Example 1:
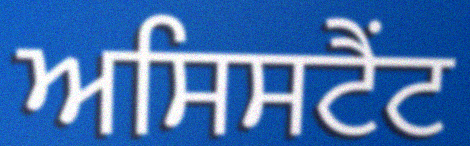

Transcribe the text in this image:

ਅਸਿਸਟੈਂਟ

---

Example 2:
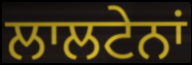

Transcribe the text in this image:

ਲਾਲਟੇਨਾਂ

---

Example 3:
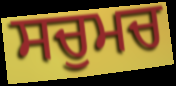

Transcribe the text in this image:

ਸਚੁਮਚ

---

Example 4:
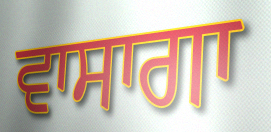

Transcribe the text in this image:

ਵਾਸਾਗਾ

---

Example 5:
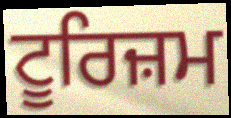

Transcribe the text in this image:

ਟੂਰਿਜ਼ਮ